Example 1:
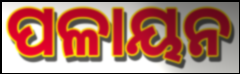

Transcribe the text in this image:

ପଳାୟନ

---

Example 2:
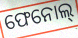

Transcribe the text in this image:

ଫେନୋଲ୍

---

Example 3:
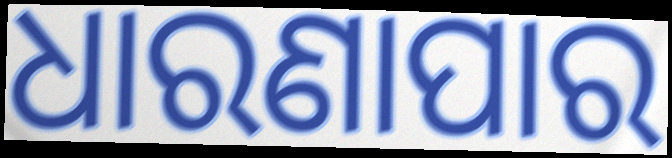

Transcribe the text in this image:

ଧାରଣାପାର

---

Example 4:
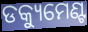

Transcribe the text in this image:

ଡକ୍ୟୁମେଣ୍ଟ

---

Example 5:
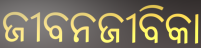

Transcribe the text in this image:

ଜୀବନଜୀବିକା